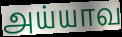
அய்யாவ